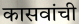
कासवांची